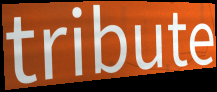
tribute